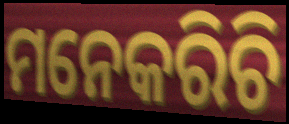
ମନେକରିଚି